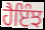
ਹੈਇੰਝ